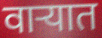
वाऱ्यात